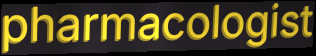
pharmacologist